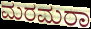
ಮರಮರಾ